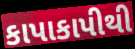
કાપાકાપીથી